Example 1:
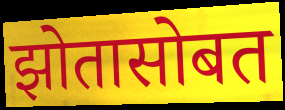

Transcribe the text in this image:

झोतासोबत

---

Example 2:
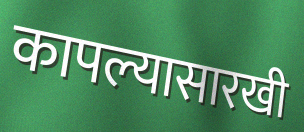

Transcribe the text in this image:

कापल्यासारखी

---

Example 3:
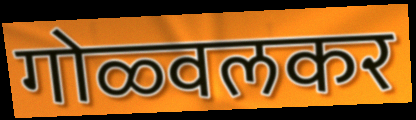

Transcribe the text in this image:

गोळ्वलकर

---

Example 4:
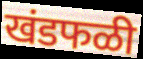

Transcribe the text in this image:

खंडफळी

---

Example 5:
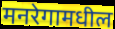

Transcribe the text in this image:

मनरेगामधील